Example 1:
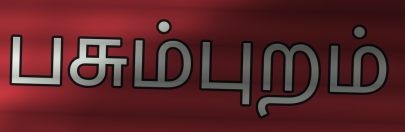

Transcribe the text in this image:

பசும்புறம்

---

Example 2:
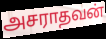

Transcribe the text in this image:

அசராதவன்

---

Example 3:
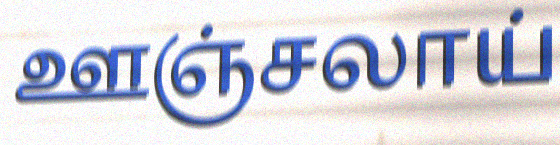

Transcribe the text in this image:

ஊஞ்சலாய்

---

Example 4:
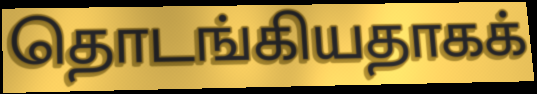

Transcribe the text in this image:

தொடங்கியதாகக்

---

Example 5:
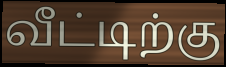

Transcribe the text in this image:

வீட்டிற்கு